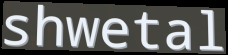
shwetal